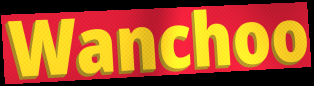
Wanchoo